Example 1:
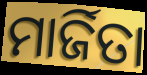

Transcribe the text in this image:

ମାର୍ଜିତା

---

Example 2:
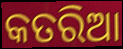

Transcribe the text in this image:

କତରିଆ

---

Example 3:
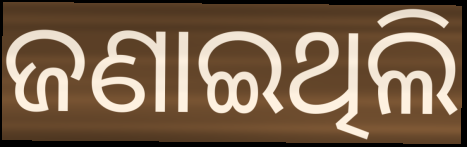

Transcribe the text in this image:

ଜଣାଇଥିଲି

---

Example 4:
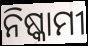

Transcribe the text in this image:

ନିଷ୍କାମୀ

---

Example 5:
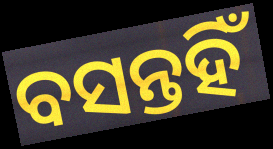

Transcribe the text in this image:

ବସନ୍ତହିଁ